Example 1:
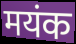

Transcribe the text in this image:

मयंक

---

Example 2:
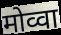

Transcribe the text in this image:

मोव्वा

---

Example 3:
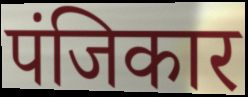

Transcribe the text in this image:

पंजिकार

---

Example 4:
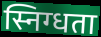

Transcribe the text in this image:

स्निग्धता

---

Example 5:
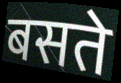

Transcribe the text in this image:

बसते